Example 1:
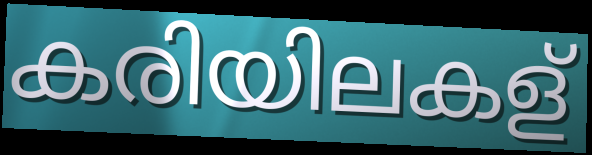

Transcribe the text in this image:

കരിയിലകള്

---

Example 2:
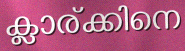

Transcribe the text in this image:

ക്ലാര്ക്കിനെ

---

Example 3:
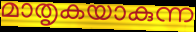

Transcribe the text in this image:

മാതൃകയാകുന്ന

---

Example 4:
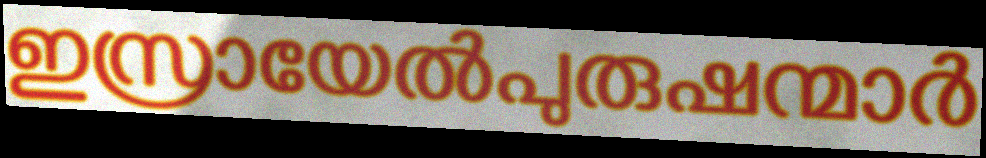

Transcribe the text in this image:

ഇസ്രായേൽപുരുഷന്മാർ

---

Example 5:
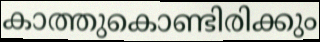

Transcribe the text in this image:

കാത്തുകൊണ്ടിരിക്കും